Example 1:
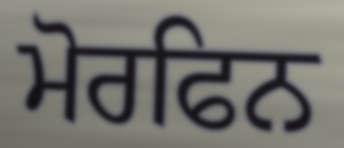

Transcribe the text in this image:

ਮੋਰਫਿਨ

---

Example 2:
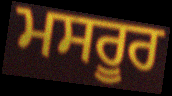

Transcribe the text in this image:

ਮਸਰੂਰ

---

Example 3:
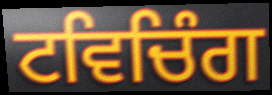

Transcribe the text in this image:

ਟਵਿਚਿੰਗ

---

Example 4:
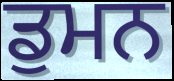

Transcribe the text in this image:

ਡੁਮਨ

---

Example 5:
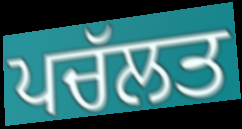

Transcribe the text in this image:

ਪਚੱਲਤ